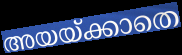
അയയ്ക്കാതെ